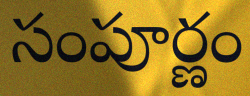
సంపూర్ణం